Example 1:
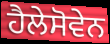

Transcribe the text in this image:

ਹੈਲੇਸੋਵੇਨ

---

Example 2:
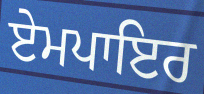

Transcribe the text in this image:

ਏਮਪਾਇਰ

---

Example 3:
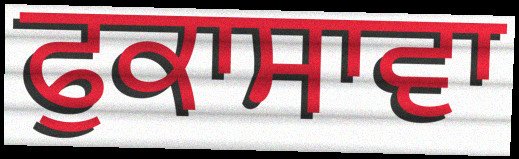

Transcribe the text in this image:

ਫੁਕਾਸਾਵਾ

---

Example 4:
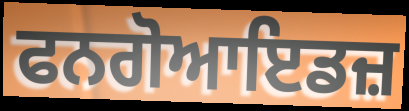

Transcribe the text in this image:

ਫਨਗੋਆਇਡਜ਼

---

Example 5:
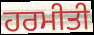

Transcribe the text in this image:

ਹਰਮੀਤੀ